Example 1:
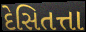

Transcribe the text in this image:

દેસિતત્તા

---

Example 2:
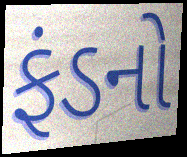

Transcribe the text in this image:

ફંડનો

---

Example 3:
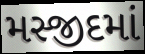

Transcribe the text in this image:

મસ્જીદમાં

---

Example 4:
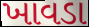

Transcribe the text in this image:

ખાવડા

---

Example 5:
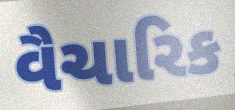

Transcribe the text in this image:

વૈચારિક